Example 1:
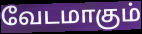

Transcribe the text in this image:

வேடமாகும்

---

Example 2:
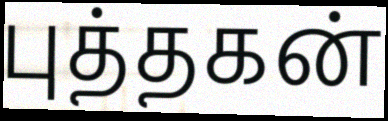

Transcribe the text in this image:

புத்தகன்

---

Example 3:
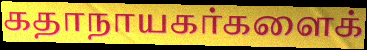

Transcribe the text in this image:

கதாநாயகர்களைக்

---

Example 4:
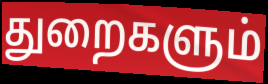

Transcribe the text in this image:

துறைகளும்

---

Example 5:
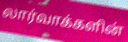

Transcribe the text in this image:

லார்வாக்களின்